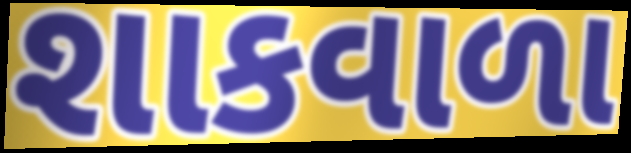
શાકવાળા